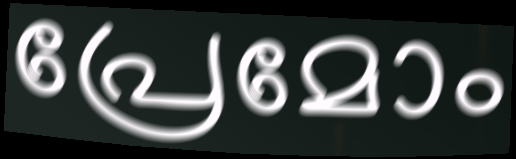
പ്രേമോം